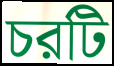
চরটি